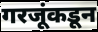
गरजूंकडून